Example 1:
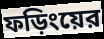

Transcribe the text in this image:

ফড়িংয়ের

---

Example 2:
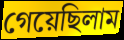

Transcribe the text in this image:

গেয়েছিলাম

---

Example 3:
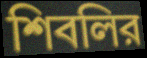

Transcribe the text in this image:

শিবলির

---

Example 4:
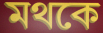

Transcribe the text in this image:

মথকে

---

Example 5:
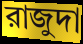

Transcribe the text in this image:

রাজুদা